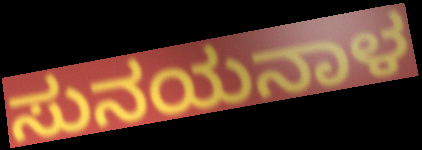
ಸುನಯನಾಳ